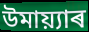
উমায়্যাৰ